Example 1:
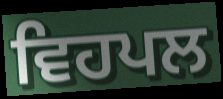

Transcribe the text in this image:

ਵਿਹਪਲ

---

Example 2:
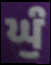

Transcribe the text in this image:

ਘੁੰ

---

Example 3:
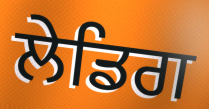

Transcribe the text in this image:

ਲੇਡਿਗ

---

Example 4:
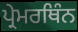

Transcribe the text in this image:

ਪ੍ਰੇਮਰਥਿੰਨ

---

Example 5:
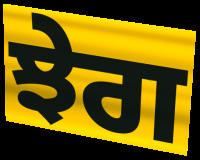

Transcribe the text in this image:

ਝੇਗ